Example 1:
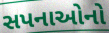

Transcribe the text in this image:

સપનાઓનો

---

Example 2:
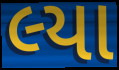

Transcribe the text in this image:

લ્યા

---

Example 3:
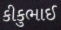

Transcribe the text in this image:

કીકુભાઈ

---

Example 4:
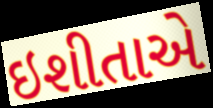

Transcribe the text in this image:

ઇશીતાએ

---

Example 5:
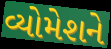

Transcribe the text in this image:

વ્યોમેશને